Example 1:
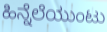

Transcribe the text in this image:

ಹಿನ್ನೆಲೆಯುಂಟು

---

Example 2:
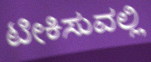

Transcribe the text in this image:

ಟೀಕಿಸುವಲ್ಲಿ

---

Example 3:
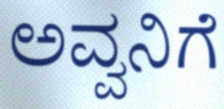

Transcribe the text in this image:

ಅವ್ವನಿಗೆ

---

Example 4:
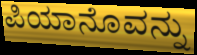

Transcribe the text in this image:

ಪಿಯಾನೊವನ್ನು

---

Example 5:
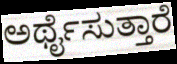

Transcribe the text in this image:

ಅರ್ಥೈಸುತ್ತಾರೆ